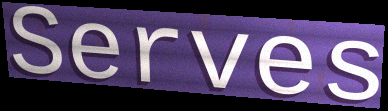
Serves